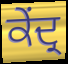
ਕੇਂਦ੍ਰ